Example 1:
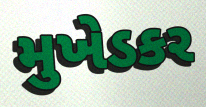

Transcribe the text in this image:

મુખેડકર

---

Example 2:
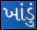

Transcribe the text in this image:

ખાંડું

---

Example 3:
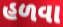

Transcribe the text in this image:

હળવા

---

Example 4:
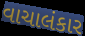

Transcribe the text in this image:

વાચાલંકાર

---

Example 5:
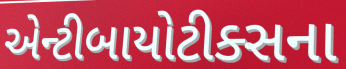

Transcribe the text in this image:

એન્ટીબાયોટીક્સના